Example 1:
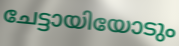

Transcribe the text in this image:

ചേട്ടായിയോടും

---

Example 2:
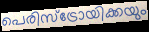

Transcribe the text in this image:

പെരിസ്ട്രോയിക്കയും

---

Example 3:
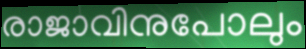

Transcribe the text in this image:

രാജാവിനുപോലും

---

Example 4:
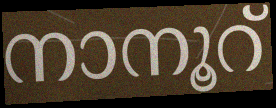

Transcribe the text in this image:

നാനൂറ്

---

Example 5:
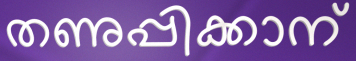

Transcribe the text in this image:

തണുപ്പിക്കാന്